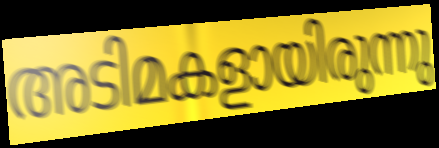
അടിമകളായിരുന്നു